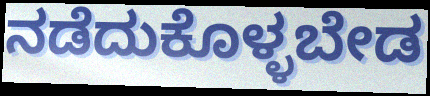
ನಡೆದುಕೊಳ್ಳಬೇಡ